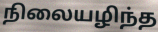
நிலையழிந்த